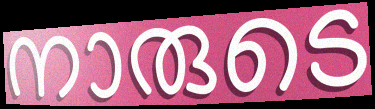
നാരുടെ